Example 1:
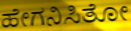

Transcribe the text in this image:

ಹೇಗನಿಸಿತೋ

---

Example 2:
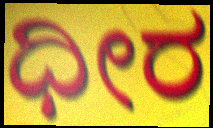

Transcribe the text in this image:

ಧೀರ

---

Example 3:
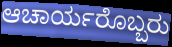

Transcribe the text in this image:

ಆಚಾರ್ಯರೊಬ್ಬರು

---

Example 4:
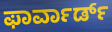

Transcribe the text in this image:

ಫಾರ್ವಾರ್ಡ್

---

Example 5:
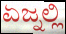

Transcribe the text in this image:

ಏಜ್ನಲ್ಲಿ